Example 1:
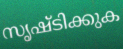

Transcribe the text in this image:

സൃഷ്ടിക്കുക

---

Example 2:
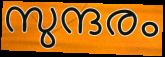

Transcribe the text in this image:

സുന്ദരം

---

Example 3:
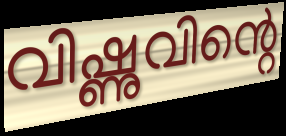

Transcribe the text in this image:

വിഷ്ണുവിന്റെ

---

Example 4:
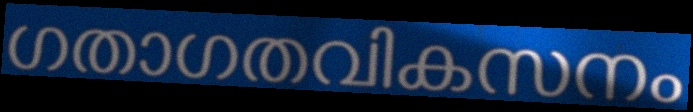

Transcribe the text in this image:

ഗതാഗതവികസനം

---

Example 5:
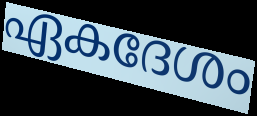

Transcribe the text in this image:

ഏകദേശം